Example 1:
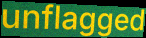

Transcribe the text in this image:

unflagged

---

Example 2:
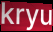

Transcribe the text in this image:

kryu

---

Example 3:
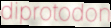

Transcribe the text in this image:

diprotodon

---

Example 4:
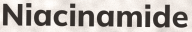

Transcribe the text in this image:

Niacinamide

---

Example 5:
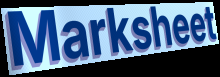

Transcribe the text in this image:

Marksheet